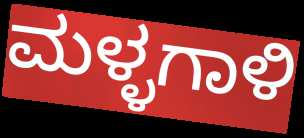
ಮಳ್ಳಗಾಳಿ